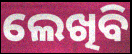
ଲେଖିବି